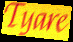
Tyare